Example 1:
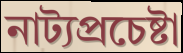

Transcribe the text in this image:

নাট্যপ্রচেষ্টা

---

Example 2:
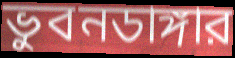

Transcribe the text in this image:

ভুবনডাঙ্গার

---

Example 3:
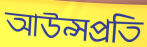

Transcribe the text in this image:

আউন্সপ্রতি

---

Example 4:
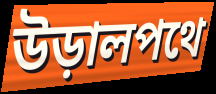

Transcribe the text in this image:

উড়ালপথে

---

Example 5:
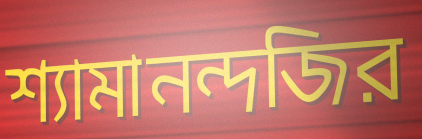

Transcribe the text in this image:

শ্যামানন্দজির